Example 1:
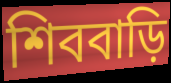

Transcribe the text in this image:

শিববাড়ি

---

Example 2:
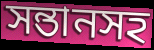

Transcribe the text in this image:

সন্তানসহ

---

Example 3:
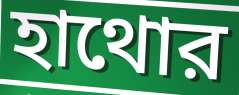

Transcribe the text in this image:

হাথোর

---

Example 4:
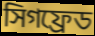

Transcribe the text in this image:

সিগফ্রেড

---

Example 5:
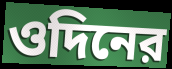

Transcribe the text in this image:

ওদিনের